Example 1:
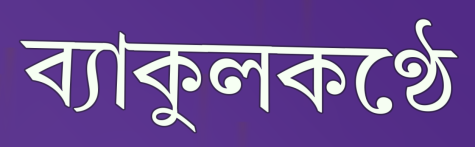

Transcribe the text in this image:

ব্যাকুলকণ্ঠে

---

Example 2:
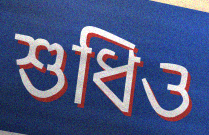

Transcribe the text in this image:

শুধিও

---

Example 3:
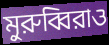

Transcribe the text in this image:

মুরুব্বিরাও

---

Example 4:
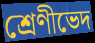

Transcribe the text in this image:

শ্রেণীভেদ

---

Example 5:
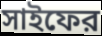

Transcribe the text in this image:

সাইফের